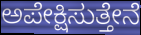
ಅಪೇಕ್ಷಿಸುತ್ತೇನೆ